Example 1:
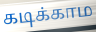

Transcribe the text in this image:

கடிக்காம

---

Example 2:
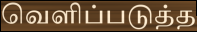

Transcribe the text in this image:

வெளிப்படுத்த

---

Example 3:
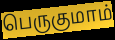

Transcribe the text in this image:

பெருகுமாம்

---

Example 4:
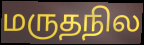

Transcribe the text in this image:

மருதநில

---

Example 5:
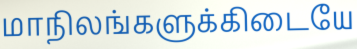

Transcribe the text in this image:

மாநிலங்களுக்கிடையே